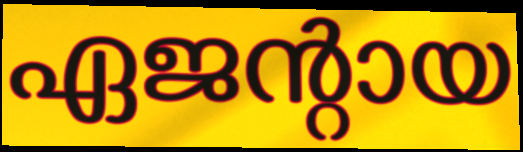
ഏജന്റായ